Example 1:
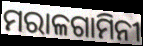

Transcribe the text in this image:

ମରାଳଗାମିନୀ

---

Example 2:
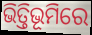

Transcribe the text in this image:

ଭିତ୍ତିଭୂମିରେ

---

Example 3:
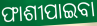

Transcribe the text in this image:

ଫାଶୀପାଇବା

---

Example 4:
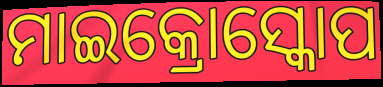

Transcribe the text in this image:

ମାଇକ୍ରୋସ୍କୋପ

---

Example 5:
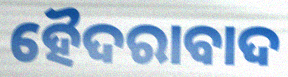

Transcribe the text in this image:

ହୈଦରାବାଦ